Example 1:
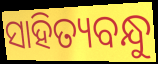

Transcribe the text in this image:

ସାହିତ୍ୟବନ୍ଧୁ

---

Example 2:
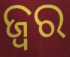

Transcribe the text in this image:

ଜ୍ଵର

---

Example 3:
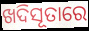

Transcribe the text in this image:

ଖଦିସୂତାରେ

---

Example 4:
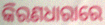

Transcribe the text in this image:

କିରଣଧାରାରେ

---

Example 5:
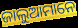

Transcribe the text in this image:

ଜାଲୁଆମାନେ